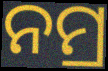
ନମ୍ର